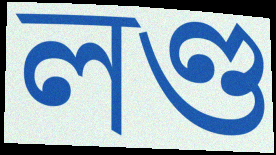
লণ্ড